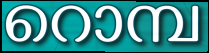
റൊമ്പ